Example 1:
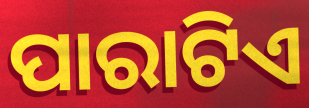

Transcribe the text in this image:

ପାରାଟିଏ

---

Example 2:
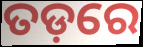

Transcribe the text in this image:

ତଡ଼ରେ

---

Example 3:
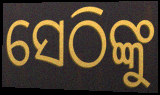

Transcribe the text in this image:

ସେଠିଙ୍କୁ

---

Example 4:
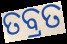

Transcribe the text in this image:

ତବ୍ରତ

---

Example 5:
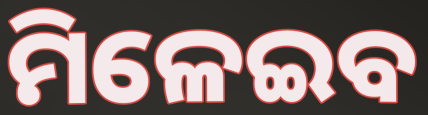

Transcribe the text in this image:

ମିଳେଇବ